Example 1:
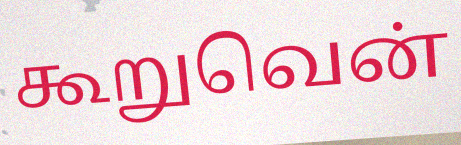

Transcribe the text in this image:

கூறுவென்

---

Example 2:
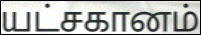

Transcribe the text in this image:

யட்சகானம்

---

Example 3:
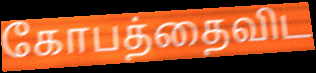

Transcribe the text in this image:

கோபத்தைவிட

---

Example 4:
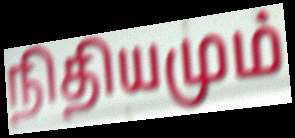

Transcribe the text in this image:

நிதியமும்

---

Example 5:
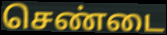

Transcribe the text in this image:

செண்டை